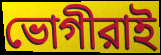
ভোগীরাই